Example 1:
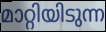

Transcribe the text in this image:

മാറ്റിയിടുന്ന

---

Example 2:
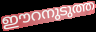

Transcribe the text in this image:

ഈറനുടുത്ത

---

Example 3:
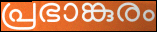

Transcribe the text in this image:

പ്രഭാങ്കുരം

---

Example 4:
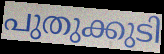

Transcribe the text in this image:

പുതുക്കുടി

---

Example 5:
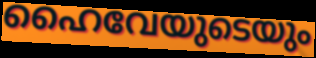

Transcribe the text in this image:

ഹൈവേയുടെയും